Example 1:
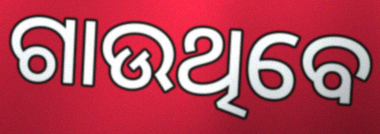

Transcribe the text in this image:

ଗାଉଥିବେ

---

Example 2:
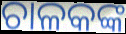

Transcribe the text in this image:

ଚାଳକଙ୍କ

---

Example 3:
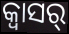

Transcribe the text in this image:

କ୍ୱାସର୍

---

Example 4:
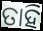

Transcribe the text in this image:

ତାହି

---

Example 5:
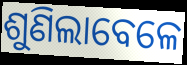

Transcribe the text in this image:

ଶୁଣିଲାବେଳେ